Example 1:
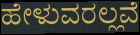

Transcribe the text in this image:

ಹೇಳುವರಲ್ಲವೆ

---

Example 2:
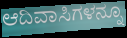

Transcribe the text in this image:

ಆದಿವಾಸಿಗಳನ್ನೂ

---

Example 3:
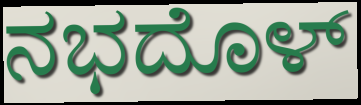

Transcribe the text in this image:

ನಭದೊಳ್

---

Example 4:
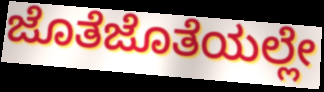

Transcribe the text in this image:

ಜೊತೆಜೊತೆಯಲ್ಲೇ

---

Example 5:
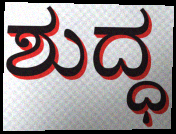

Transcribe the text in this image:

ಶುದ್ಧ